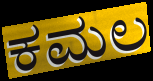
ಕಮಲ